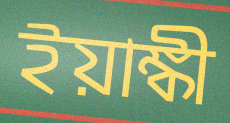
ইয়াঙ্কী